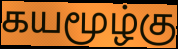
கயமூழ்கு